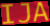
IJA